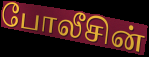
போலீசின்